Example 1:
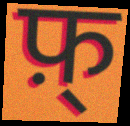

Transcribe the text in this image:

फ़्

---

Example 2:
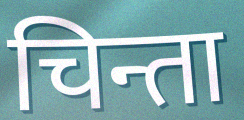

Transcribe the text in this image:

चिन्ता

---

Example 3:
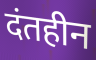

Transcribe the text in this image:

दंतहीन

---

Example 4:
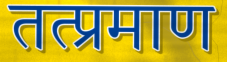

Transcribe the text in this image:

तत्प्रमाण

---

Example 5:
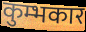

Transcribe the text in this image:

कुम्भकार